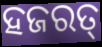
ହଜରତ୍